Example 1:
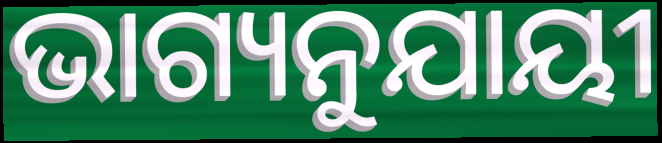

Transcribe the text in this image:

ଭାଗ୍ୟନୁଯାୟୀ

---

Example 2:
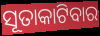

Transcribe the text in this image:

ସୂତାକାଟିବାର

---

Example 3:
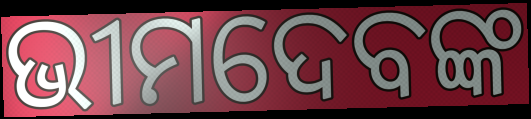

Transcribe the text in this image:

ଭୀମଦେବଙ୍କ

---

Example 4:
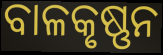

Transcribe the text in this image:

ବାଳକୃଷ୍ଣନ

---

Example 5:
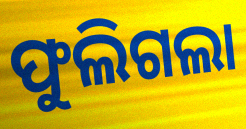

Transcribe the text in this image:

ଫୁଲିଗଲା